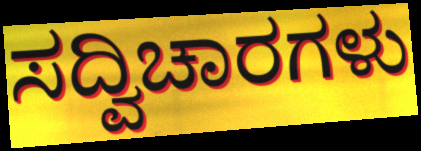
ಸದ್ವಿಚಾರಗಳು